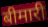
बीमारी